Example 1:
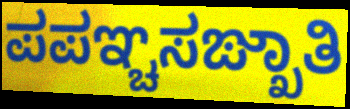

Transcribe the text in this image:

ಪಪಞ್ಚಸಙ್ಖಾತಿ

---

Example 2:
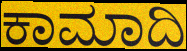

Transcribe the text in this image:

ಕಾಮಾದಿ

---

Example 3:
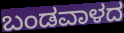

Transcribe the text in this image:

ಬಂಡವಾಳದ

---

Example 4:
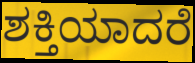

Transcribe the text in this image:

ಶಕ್ತಿಯಾದರೆ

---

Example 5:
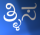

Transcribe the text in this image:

ತ್ಳಿಸ